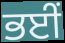
ਭਈਂ